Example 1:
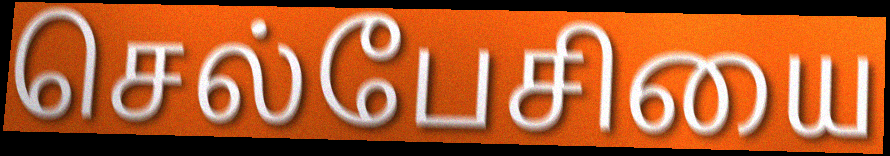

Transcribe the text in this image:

செல்பேசியை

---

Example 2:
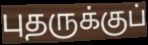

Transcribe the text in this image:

புதருக்குப்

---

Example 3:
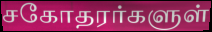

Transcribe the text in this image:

சகோதரர்களுள்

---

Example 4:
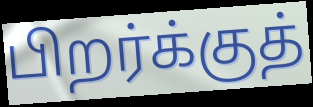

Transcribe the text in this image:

பிறர்க்குத்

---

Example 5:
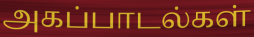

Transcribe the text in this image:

அகப்பாடல்கள்